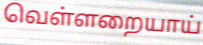
வெள்ளறையாய்